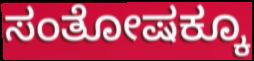
ಸಂತೋಷಕ್ಕೂ